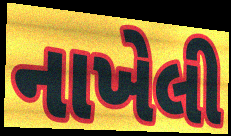
નાખેલી